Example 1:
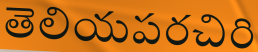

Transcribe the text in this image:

తెలియపరచిరి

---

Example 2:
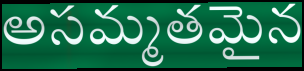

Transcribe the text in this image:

అసమ్మతమైన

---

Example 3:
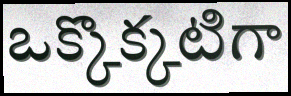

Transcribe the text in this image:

ఒక్కొక్కటిగా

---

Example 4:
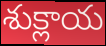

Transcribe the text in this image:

శుక్లాయ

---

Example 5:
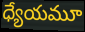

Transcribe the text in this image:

ధ్యేయమూ